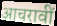
आचरावीं